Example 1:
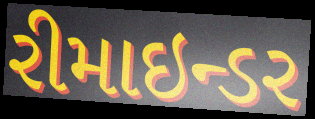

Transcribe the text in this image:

રીમાઇન્ડર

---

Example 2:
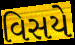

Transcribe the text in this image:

વિસયે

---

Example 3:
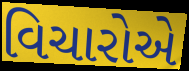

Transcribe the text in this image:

વિચારોએ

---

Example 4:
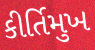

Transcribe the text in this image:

કીર્તિમુખ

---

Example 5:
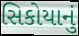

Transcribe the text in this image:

સિકોયાનું